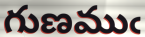
గుణముఁ